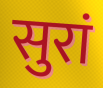
सुरां